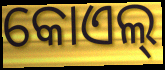
କୋଏଲ୍